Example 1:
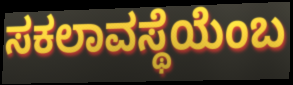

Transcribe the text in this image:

ಸಕಲಾವಸ್ಥೆಯೆಂಬ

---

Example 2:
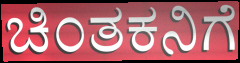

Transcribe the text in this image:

ಚಿಂತಕನಿಗೆ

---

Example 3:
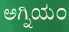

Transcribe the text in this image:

ಅಗ್ನಿಯಂ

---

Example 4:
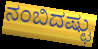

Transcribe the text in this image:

ನಂಬಿದಷ್ಟು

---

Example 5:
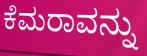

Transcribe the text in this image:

ಕೆಮರಾವನ್ನು